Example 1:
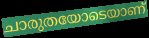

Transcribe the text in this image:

ചാരുതയോടെയാണ്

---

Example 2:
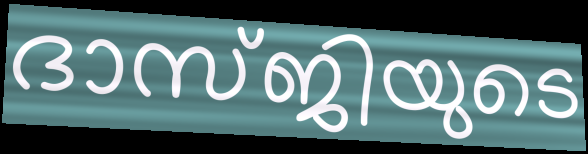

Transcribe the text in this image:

ദാസ്ജിയുടെ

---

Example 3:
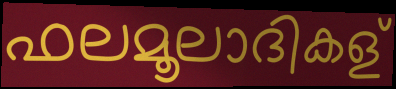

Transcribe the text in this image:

ഫലമൂലാദികള്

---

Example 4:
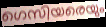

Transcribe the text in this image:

ഗെസിയരെയും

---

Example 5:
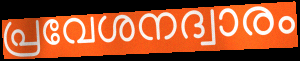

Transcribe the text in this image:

പ്രവേശനദ്വാരം